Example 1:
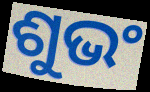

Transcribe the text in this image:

ଶୁଭଂ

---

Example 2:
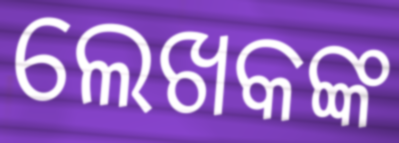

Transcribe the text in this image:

ଲେଖକଙ୍କ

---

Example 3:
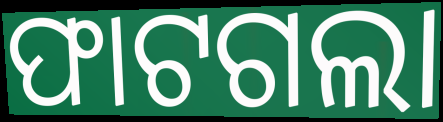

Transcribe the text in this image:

ଫାଟଗଲା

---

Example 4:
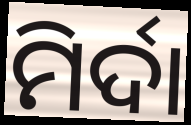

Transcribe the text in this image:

ମିର୍ଦା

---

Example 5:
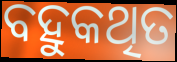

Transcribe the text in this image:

ବହୁକଥିତ